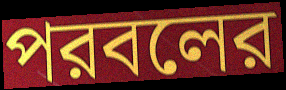
পরবলের